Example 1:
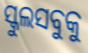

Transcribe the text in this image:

ସ୍କୁଲସବୁକୁ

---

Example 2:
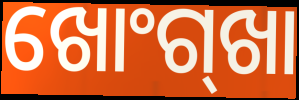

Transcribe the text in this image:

ଖୋଂଗ୍‍ଖା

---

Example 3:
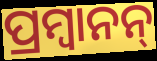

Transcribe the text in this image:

ପ୍ରମ୍ବାନନ୍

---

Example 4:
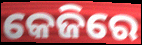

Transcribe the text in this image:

କେଜିରେ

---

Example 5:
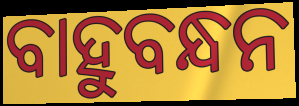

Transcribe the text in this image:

ବାହୁବନ୍ଧନ